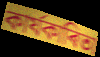
কাৰ্যকাৰিতা